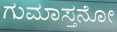
ಗುಮಾಸ್ತನೋ